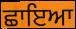
ਛਾਇਆ